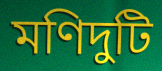
মণিদুটি